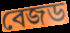
বেজড